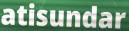
atisundar